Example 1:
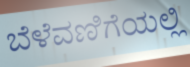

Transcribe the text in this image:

ಬೆಳೆವಣಿಗೆಯಲ್ಲಿ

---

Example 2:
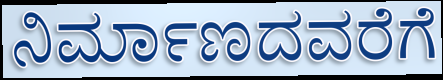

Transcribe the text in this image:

ನಿರ್ಮಾಣದವರೆಗೆ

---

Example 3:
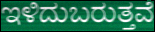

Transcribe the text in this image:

ಇಳಿದುಬರುತ್ತವೆ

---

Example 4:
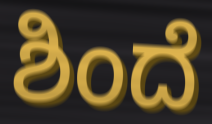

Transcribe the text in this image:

ಶಿಂದೆ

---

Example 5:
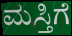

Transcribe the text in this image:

ಮಸ್ತಿಗೆ